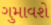
ગુમાવશે